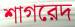
শাগরেদ